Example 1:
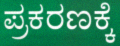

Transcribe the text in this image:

ಪ್ರಕರಣಕ್ಕೆ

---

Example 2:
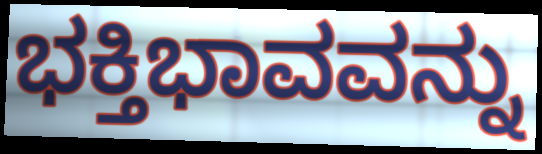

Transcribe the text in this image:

ಭಕ್ತಿಭಾವವನ್ನು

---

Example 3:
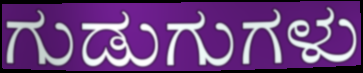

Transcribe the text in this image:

ಗುಡುಗುಗಳು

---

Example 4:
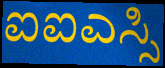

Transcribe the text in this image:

ಐಐಎಸ್ಸಿ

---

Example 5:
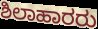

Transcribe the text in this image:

ಶಿಲಾಹಾರರು